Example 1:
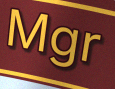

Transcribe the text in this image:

Mgr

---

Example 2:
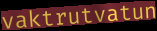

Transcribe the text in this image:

vaktrutvatun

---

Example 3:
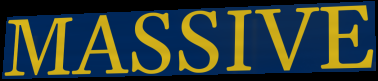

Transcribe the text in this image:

MASSIVE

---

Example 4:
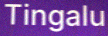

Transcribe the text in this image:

Tingalu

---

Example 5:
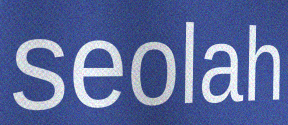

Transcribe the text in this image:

seolah